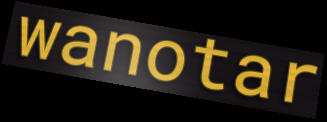
wanotar